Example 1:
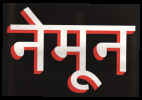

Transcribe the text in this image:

नेमून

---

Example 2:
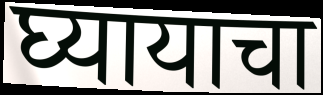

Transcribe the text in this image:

घ्यायाचा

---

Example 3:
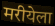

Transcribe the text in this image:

मरीयेला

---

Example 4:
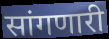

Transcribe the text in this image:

सांगणारी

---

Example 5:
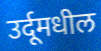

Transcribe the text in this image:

उर्दूमधील